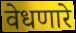
वेधणारे